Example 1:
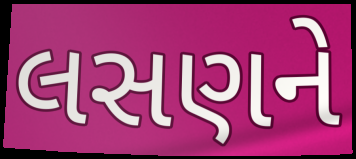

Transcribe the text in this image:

લસણને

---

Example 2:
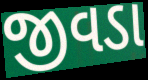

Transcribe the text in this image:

જીવડા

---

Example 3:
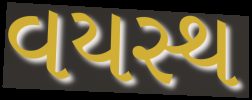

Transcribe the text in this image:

વયસ્થ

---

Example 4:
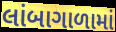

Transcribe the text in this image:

લાંબાગાળામાં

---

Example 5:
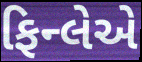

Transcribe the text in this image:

ફિન્લેએ